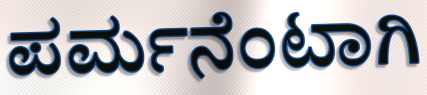
ಪರ್ಮನೆಂಟಾಗಿ